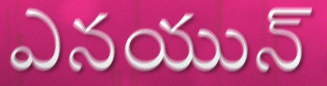
ఎనయున్